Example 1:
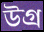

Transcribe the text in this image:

উগ্ৰ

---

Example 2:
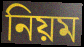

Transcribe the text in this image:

নিয়ম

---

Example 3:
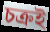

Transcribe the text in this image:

চক্ৰই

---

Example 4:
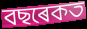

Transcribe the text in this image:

বছৰেকত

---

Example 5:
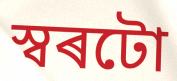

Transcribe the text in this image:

স্বৰটো